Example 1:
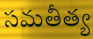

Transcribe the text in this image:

సమతీత్య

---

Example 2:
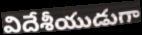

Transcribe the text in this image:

విదేశీయుడుగా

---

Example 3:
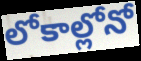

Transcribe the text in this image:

లోకాల్లోనో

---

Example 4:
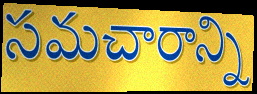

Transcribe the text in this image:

సమచారాన్ని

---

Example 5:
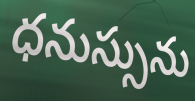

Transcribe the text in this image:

ధనుస్సును